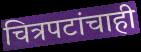
चित्रपटांचाही